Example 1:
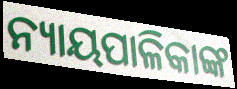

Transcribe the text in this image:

ନ୍ୟାୟପାଳିକାଙ୍କ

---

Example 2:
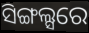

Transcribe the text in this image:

ସିଙ୍ଗଲ୍ସରେ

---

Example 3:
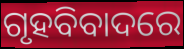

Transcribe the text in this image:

ଗୃହବିବାଦରେ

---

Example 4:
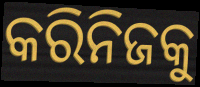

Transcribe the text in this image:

କରିନିଜକୁ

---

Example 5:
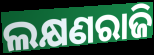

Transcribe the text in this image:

ଲକ୍ଷଣରାଜି